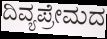
ದಿವ್ಯಪ್ರೇಮದ